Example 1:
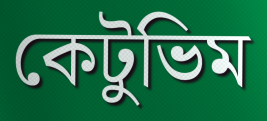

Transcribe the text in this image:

কেটুভিম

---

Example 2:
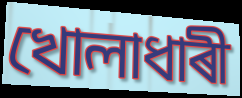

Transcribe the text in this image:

খোলাধাৰী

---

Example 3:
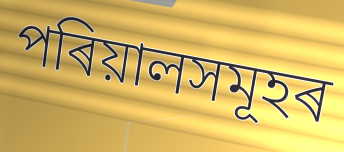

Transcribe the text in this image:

পৰিয়ালসমূহৰ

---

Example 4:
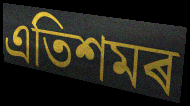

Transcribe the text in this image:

এতিশমৰ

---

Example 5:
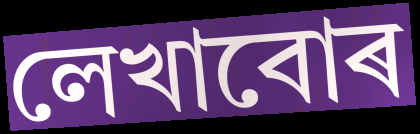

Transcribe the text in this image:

লেখাবোৰ